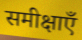
समीक्षाएँ